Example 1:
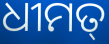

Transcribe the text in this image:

ଧୀମତ୍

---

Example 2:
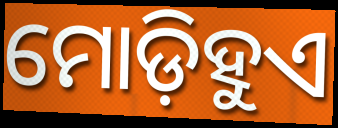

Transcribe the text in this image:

ମୋଡ଼ିହୁଏ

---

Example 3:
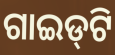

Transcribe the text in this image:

ଗାଇଡ୍‌ଟି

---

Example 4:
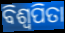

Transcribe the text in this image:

ବିଶ୍ୱପିତା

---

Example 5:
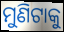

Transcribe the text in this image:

ମୁଣିଟାକୁ